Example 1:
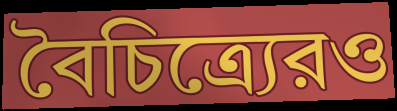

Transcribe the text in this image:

বৈচিত্র্যেরও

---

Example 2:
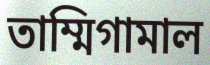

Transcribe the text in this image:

তাম্মিগামাল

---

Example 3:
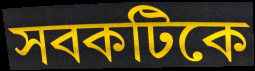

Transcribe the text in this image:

সবকটিকে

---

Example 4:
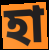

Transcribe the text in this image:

হা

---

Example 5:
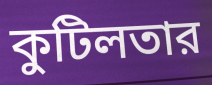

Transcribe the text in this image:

কুটিলতার